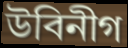
উবিনীগ